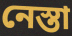
নেস্তা